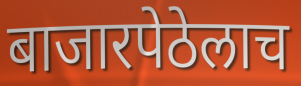
बाजारपेठेलाच